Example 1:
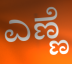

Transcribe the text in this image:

ಎಣ್ಣೆ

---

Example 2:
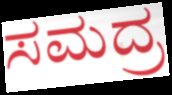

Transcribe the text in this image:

ಸಮದ್ರ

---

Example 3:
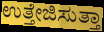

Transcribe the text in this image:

ಉತ್ತೇಜಿಸುತ್ತಾ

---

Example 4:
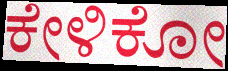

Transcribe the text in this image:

ಕೇಳಿಕೋ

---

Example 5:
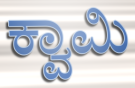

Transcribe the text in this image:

ಕ್ವಾಮಿ